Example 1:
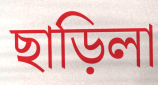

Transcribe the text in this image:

ছাড়িলা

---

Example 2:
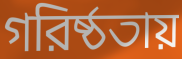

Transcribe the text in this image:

গরিষ্ঠতায়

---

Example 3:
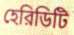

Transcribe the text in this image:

হেরিডিটি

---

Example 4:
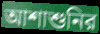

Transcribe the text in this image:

আশাশুনির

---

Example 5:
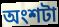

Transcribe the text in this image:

অংশটা